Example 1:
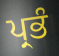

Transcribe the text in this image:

ਪ੍ਰਭੰ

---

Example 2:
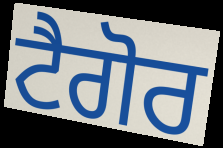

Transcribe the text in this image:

ਟੈਗੋਰ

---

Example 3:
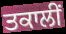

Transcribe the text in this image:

ਤਕਾਲੀਂ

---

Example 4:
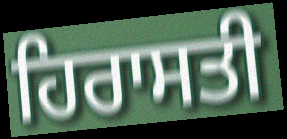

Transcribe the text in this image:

ਹਿਰਾਸਤੀ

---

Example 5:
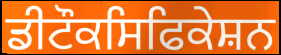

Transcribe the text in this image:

ਡੀਟੌਕਸਿਫਿਕੇਸ਼ਨ